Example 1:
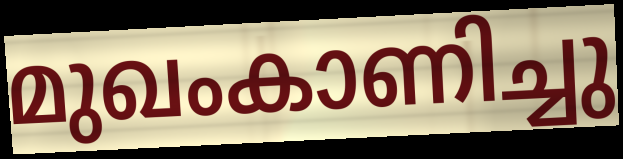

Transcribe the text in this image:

മുഖംകാണിച്ചു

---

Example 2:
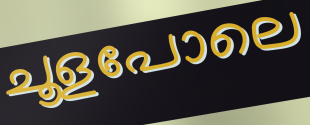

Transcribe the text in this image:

ചൂളപോലെ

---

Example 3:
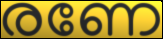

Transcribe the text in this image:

രണേ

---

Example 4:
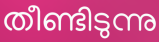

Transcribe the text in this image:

തീണ്ടിടുന്നു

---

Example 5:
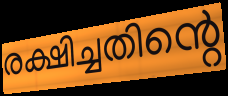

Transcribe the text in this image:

രക്ഷിച്ചതിന്റെ